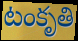
టంకృతి